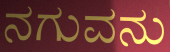
ನಗುವನು